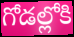
గోడల్లోకి